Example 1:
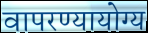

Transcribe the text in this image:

वापरण्यायोग्य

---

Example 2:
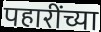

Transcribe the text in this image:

पहारींच्या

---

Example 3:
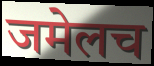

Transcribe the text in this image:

जमेलच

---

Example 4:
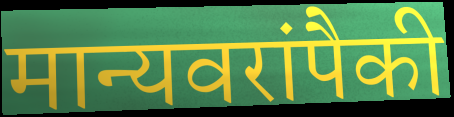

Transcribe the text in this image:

मान्यवरांपैकी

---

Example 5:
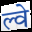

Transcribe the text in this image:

ल्वे